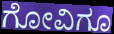
ಗೋವಿಗೂ